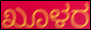
ಖೂಳರ